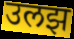
उलझ